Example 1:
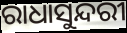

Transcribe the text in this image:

ରାଧାସୁନ୍ଦରୀ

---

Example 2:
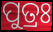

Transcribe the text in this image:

ପୁତ୍ରଃ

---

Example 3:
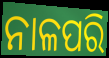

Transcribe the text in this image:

ନାଳପରି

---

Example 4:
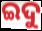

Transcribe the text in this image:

ଇଦୁ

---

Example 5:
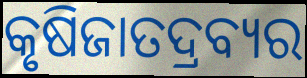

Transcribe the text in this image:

କୃଷିଜାତଦ୍ରବ୍ୟର